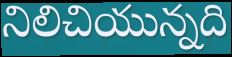
నిలిచియున్నది